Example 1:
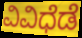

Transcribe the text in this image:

ವಿವಿಧೆಡೆ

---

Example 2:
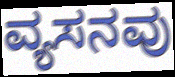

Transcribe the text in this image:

ವ್ಯಸನವು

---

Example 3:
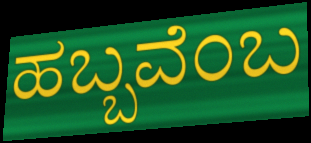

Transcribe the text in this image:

ಹಬ್ಬವೆಂಬ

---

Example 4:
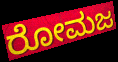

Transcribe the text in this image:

ರೋಮಜ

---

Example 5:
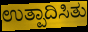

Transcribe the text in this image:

ಉತ್ಪಾದಿಸಿತು